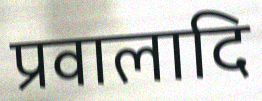
प्रवालादि